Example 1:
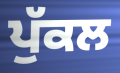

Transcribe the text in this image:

ਪੁੱਕਲ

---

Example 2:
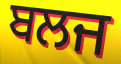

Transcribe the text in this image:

ਬਲਜ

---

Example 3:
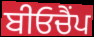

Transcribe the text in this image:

ਬੀਓਚੈਂਪ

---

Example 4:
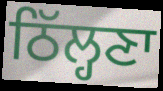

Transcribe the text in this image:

ਠਿੱਲ੍ਹਣਾ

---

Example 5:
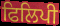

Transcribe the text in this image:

ਫਿਲਿਪੀ